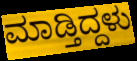
ಮಾಡ್ತಿದ್ದಳು